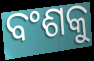
ବଂଶକୁ